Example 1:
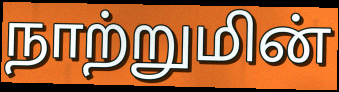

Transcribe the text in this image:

நாற்றுமின்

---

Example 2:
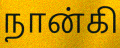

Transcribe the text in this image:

நான்கி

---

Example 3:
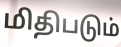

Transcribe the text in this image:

மிதிபடும்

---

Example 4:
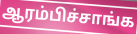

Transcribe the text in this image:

ஆரம்பிச்சாங்க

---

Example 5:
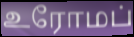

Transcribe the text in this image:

உரோமப்